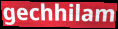
gechhilam